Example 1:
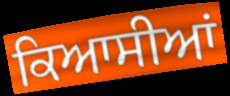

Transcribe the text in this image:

ਕਿਆਸੀਆਂ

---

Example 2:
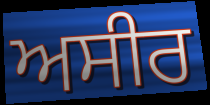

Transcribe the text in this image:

ਅਸੀਰ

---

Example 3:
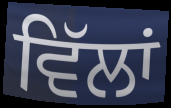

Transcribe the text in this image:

ਵਿੱਲਾਂ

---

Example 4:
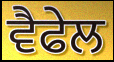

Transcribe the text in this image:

ਵੈਫੇਲ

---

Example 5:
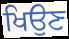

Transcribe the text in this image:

ਖਿਉਣ